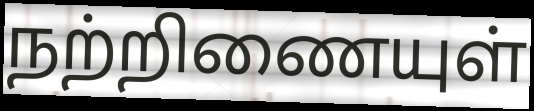
நற்றிணையுள்